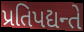
પ્રતિપદ્યન્તે